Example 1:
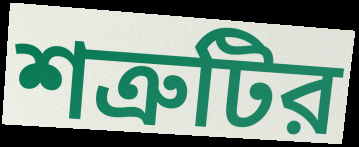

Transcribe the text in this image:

শত্রুটির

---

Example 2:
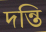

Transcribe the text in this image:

দন্তি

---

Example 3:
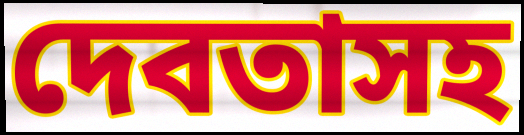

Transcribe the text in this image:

দেবতাসহ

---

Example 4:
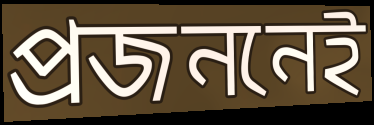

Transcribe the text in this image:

প্রজননেই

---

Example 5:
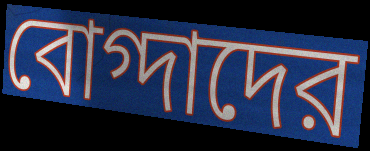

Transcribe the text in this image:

বোগ্দাদের